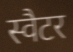
स्वैटर